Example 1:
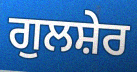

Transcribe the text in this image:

ਗੁਲਸ਼ੇਰ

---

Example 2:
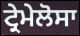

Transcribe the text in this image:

ਟ੍ਰੇਮੇਲੋਸਾ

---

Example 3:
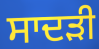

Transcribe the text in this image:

ਸਾਦੜੀ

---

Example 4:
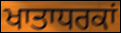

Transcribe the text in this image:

ਖਾਤਾਧਰਕਾਂ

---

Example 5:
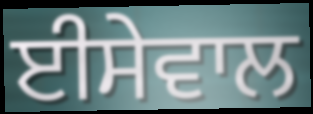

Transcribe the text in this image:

ਈਸੇਵਾਲ